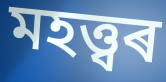
মহত্ত্বৰ